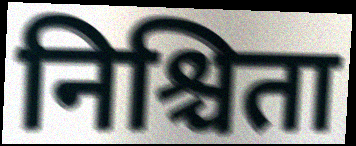
निश्चिता